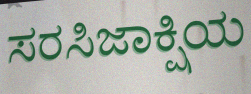
ಸರಸಿಜಾಕ್ಷಿಯ